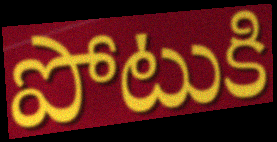
పోటుకి